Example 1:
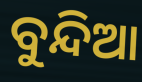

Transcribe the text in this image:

ବୁନ୍ଦିଆ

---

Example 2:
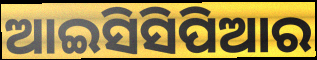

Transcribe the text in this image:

ଆଇସିସିପିଆର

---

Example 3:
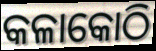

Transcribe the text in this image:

କଳାକୋଠି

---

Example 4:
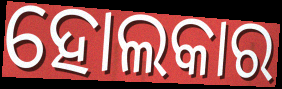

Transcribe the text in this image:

ହୋଲକାର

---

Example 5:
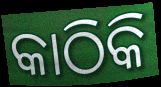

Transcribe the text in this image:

କାଠିକି